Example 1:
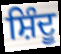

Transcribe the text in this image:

ਸ਼ਿੰਦੂ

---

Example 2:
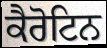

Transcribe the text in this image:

ਕੈਰੋਟਿਨ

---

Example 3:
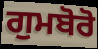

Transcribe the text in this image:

ਗੁਮਬੋਰੋ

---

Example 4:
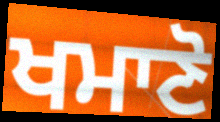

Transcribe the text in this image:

ਖਮਾਣੋ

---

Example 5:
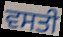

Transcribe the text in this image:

ਵਸਤੀ